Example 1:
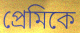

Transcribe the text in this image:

প্ৰেমিকে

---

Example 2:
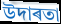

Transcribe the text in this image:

উদাৰতা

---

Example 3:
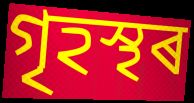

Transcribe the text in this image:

গৃহস্থৰ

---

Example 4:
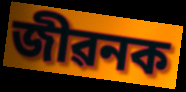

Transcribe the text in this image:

জীৱনক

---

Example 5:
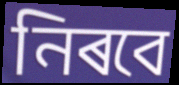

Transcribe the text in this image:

নিৰবে